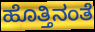
ಹೊತ್ತಿನಂತೆ